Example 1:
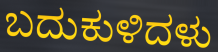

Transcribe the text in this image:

ಬದುಕುಳಿದಳು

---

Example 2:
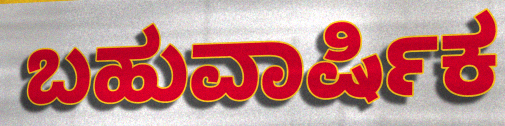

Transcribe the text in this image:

ಬಹುವಾರ್ಷಿಕ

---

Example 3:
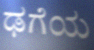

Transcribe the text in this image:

ಢಗೆಯ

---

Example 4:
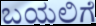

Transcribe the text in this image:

ಬಯಲಿಗೆ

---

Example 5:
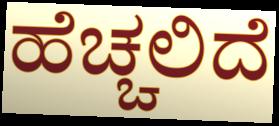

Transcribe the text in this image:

ಹೆಚ್ಚಲಿದೆ